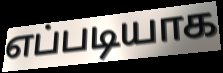
எப்படியாக